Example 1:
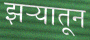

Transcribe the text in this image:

झऱ्यातून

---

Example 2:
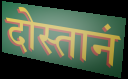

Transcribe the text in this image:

दोस्तानं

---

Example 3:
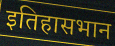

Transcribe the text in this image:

इतिहासभान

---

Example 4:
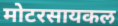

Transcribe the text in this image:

मोटरसायकल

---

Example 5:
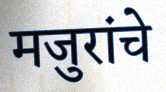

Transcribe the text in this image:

मजुरांचे